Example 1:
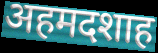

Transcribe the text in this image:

अहमदशाह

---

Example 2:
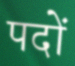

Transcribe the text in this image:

पदों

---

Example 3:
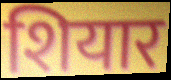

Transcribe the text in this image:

शियार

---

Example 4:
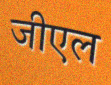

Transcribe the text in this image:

जीएल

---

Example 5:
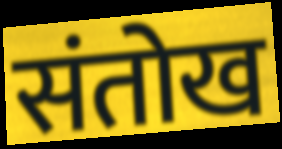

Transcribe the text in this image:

संतोख